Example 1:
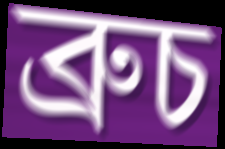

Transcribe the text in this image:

ব্ৰুচ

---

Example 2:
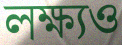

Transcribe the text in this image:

লক্ষ্যও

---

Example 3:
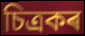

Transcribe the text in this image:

চিত্ৰকৰ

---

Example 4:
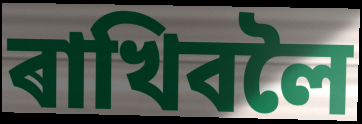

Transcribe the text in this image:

ৰাখিবলৈ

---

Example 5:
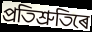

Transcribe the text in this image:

প্ৰতিশ্ৰুতিৰে